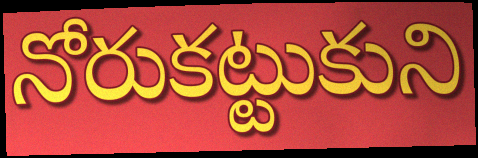
నోరుకట్టుకుని